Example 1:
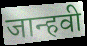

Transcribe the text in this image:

जान्हवी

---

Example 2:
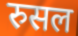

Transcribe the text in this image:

रुसल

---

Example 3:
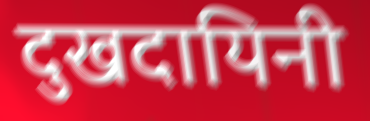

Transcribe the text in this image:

दुखदायिनी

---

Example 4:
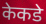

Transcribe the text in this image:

केकडे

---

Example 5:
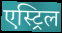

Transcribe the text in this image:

एस्ट्रिल